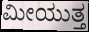
ಮೀಯುತ್ತ